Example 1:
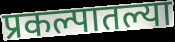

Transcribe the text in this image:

प्रकल्पातल्या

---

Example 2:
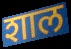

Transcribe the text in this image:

शाल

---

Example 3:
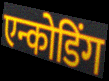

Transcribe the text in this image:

एन्कोडिंग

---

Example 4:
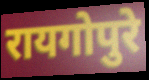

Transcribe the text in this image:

रायगोपुरे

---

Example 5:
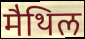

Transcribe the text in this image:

मैथिल